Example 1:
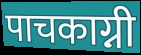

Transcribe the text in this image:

पाचकाग्नी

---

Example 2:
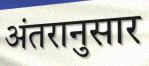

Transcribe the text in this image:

अंतरानुसार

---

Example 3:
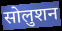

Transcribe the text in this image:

सोलुशन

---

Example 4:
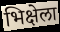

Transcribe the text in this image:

भिक्षेला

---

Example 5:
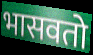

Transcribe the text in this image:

भासवतो